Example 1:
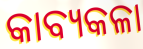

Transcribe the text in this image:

କାବ୍ୟକଳା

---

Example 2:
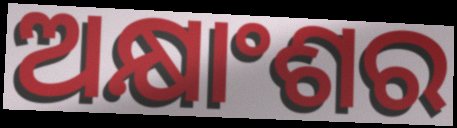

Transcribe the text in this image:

ଅକ୍ଷାଂଶର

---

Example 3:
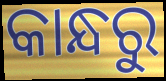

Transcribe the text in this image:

କାନ୍ଧରୁ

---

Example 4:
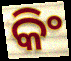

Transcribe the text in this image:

କିଂ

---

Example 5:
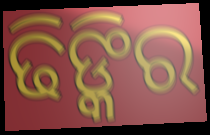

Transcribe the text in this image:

ଢିଙ୍କିର